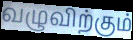
வழுவிற்கும்